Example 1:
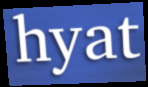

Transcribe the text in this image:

hyat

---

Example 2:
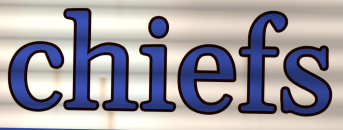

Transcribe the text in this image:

chiefs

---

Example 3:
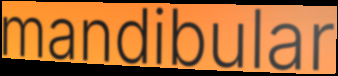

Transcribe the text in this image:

mandibular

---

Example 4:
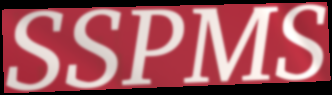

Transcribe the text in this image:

SSPMS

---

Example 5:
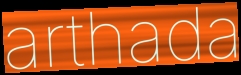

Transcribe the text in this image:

arthada